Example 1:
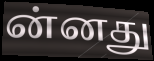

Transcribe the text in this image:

ன்னது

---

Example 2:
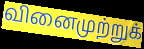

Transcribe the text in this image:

வினைமுற்றுக்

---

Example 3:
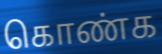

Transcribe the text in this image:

கொண்க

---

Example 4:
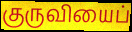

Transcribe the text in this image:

குருவியைப்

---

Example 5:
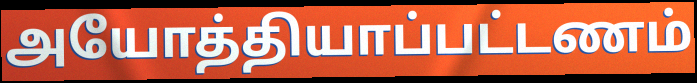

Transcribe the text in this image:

அயோத்தியாப்பட்டணம்